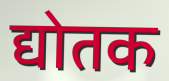
द्योतक